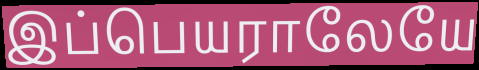
இப்பெயராலேயே